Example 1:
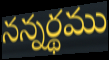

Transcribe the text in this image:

నన్నర్థము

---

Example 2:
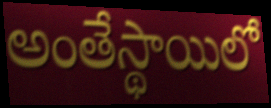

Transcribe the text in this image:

అంతేస్థాయిలో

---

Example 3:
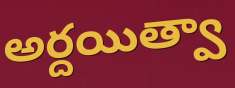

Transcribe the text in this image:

అర్దయిత్వా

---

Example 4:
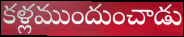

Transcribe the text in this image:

కళ్లముందుంచాడు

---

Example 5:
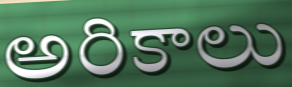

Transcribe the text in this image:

అరికాలు